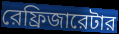
রেফ্রিজারেটার